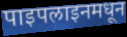
पाइपलाइनमधून